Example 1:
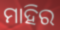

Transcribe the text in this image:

ମାହିର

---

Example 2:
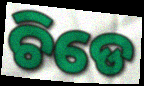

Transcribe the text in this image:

ଚିଡେ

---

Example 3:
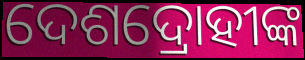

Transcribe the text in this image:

ଦେଶଦ୍ରୋହୀଙ୍କ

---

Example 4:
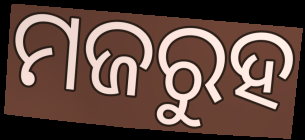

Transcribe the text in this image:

ମଜରୁହ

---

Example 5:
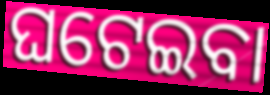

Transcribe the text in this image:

ଘଟେଇବା